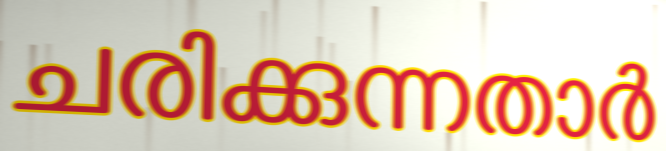
ചരിക്കുന്നതാർ